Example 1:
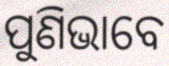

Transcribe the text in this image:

ପୁଣିଭାବେ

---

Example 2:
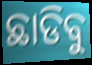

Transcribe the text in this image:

ଛାଡିବୁ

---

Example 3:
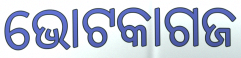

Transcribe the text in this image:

ଭୋଟକାଗଜ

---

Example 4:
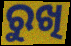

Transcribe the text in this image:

ରୁଖି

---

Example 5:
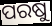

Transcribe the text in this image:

ପରଷୁ